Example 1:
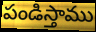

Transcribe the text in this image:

పండిస్తాము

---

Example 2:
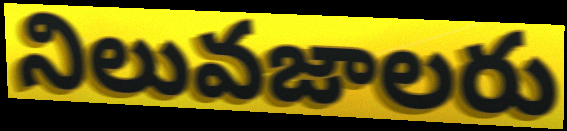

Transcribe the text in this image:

నిలువజాలరు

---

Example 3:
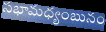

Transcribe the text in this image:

సభామధ్యంబునం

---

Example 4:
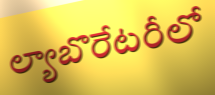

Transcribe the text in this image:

ల్యాబొరేటరీలో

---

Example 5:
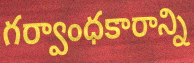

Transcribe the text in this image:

గర్వాంధకారాన్ని